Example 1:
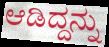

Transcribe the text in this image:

ಆಡಿದ್ದನ್ನು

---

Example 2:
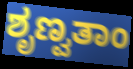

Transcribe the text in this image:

ಶೃಣ್ವತಾಂ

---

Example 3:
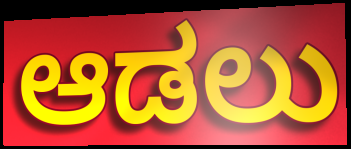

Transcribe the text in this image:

ಆಡಲು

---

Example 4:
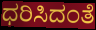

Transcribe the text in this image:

ಧರಿಸಿದಂತೆ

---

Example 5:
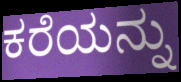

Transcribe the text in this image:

ಕರೆಯನ್ನು